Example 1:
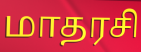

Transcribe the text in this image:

மாதரசி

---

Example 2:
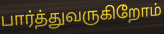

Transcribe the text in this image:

பார்த்துவருகிறோம்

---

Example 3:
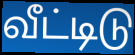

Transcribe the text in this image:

வீட்டிடு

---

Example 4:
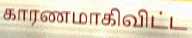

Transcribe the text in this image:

காரணமாகிவிட்ட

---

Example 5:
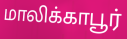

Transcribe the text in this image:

மாலிக்காபூர்